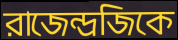
রাজেন্দ্রজিকে